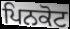
ਪਿਨਕੋਟ